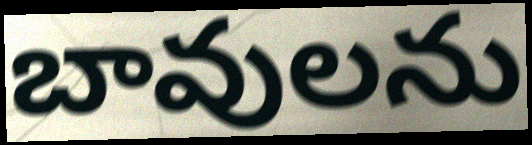
బావులను